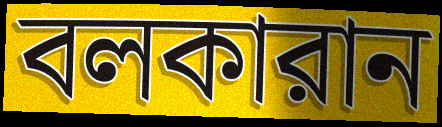
বলকারান